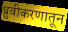
ध्रुवीकरणातून